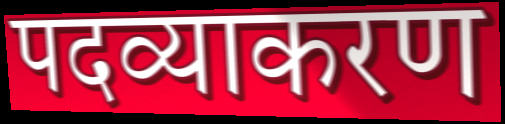
पदव्याकरण